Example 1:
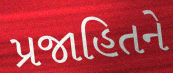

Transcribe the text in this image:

પ્રજાહિતને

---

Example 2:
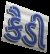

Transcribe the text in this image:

કૈડી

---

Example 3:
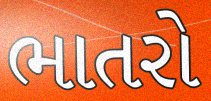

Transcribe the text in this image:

ભાતરો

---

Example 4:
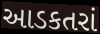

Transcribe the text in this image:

આડકતરાં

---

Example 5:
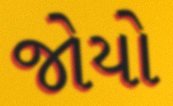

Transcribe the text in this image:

જોયો